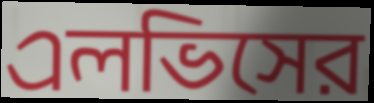
এলভিসের